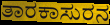
ತಾರಕಾಸುರನ